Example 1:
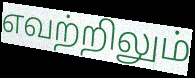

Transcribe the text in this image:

எவற்றிலும்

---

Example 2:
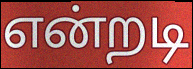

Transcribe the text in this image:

என்றடி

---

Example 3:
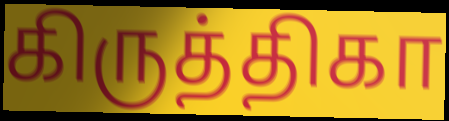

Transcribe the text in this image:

கிருத்திகா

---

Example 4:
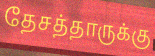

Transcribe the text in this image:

தேசத்தாருக்கு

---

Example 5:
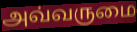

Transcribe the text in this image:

அவ்வருமை